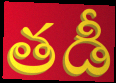
తడీ